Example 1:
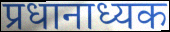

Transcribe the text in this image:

प्रधानाध्यक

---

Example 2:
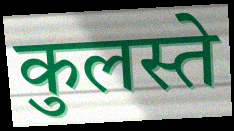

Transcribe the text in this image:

कुलस्ते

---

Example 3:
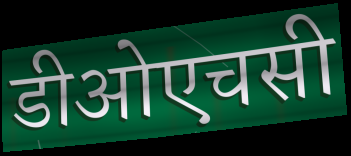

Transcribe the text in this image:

डीओएचसी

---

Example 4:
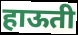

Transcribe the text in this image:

हाऊती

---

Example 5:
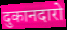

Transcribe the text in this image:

दुकानदारो